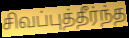
சிவப்புத்தீர்ந்த